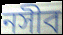
নসীব